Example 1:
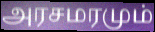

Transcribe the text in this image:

அரசமரமும்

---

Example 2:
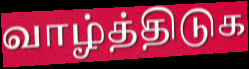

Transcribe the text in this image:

வாழ்த்திடுக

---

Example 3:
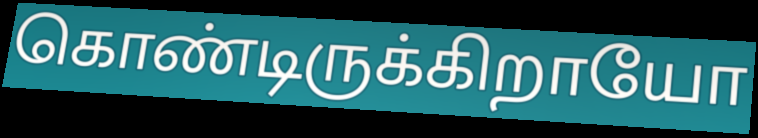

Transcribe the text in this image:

கொண்டிருக்கிறாயோ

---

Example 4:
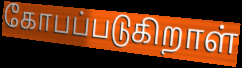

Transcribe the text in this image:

கோபப்படுகிறாள்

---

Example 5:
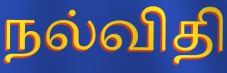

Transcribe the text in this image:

நல்விதி